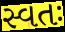
સ્વતઃ